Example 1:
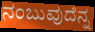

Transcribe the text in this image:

ನಂಬುವುದೆನ್ನ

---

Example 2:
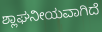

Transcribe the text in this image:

ಶ್ಲಾಘನೀಯವಾಗಿದೆ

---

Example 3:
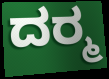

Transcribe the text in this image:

ದರ‍್ಮ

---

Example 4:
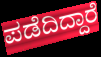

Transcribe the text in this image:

ಪಡೆದಿದ್ದಾರೆ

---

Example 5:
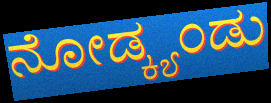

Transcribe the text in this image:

ನೋಡ್ಕ್ಯಂಡು